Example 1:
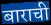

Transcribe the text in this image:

बाराची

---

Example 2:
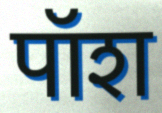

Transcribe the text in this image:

पॉश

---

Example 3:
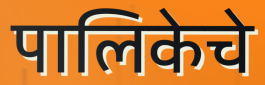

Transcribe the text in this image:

पालिकेचे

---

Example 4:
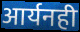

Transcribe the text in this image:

आर्यनही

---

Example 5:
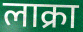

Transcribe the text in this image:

लाक्रा